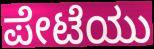
ಪೇಟೆಯು